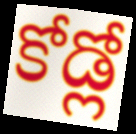
కోడ్లో